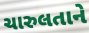
ચારુલતાને